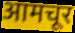
आमचूर